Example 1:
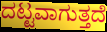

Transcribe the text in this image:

ದಟ್ಟವಾಗುತ್ತದೆ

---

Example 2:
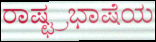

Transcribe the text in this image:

ರಾಷ್ಟ್ರಭಾಷೆಯ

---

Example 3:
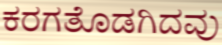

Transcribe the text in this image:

ಕರಗತೊಡಗಿದವು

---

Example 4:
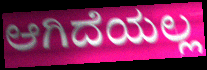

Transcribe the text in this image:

ಆಗಿದೆಯಲ್ಲ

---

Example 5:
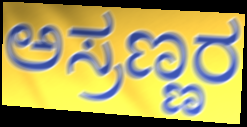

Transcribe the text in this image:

ಅಸ್ರಣ್ಣರ